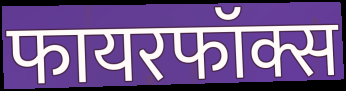
फायरफॉक्स